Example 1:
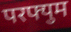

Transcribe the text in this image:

परफ्युम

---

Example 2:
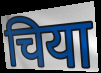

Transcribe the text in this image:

चिया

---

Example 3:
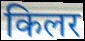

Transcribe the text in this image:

किलर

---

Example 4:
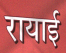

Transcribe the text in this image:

रायाई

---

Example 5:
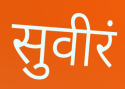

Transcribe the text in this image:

सुवीरं